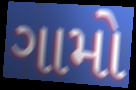
ગામો